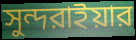
সুন্দরাইয়ার